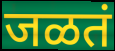
जळतं